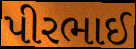
પીરભાઈ